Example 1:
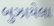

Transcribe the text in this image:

બુઝાયેલા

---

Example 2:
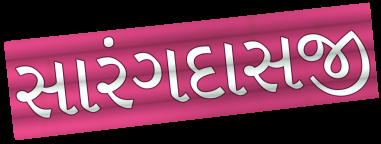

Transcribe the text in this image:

સારંગદાસજી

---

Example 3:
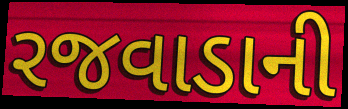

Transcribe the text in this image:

રજવાડાની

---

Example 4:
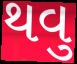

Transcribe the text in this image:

થવુ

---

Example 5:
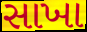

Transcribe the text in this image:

સાખા